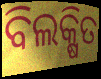
ବିଲକ୍ଷିତ